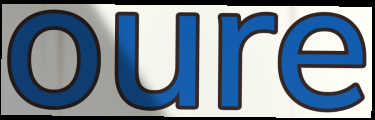
oure